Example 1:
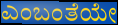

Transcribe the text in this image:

ಎಂಬಂತೆಯೇ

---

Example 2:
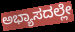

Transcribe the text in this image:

ಅಭ್ಯಾಸದಲ್ಲೇ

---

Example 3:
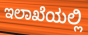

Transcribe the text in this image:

ಇಲಾಖೆಯಲ್ಲಿ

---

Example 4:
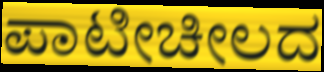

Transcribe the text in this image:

ಪಾಟೀಚೀಲದ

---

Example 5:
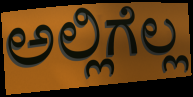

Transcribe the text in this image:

ಅಲ್ಲಿಗೆಲ್ಲ